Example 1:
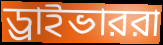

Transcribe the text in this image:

ড্রাইভাররা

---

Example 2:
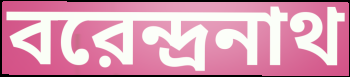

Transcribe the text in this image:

বরেন্দ্রনাথ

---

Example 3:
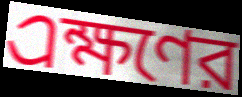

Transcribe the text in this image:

এক্ষণের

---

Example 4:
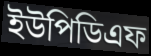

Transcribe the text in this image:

ইউপিডিএফ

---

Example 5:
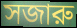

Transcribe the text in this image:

সজারু